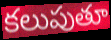
కలుపుతూ